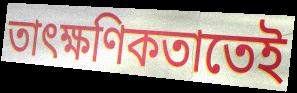
তাৎক্ষণিকতাতেই